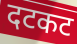
दटकट